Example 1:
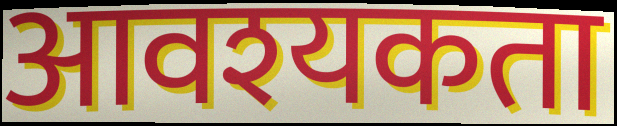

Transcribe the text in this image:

आवश्‍यकता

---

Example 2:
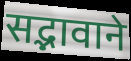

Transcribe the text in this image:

सद्भावाने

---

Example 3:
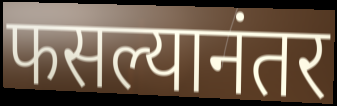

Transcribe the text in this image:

फसल्यानंतर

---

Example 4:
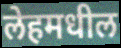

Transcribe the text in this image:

लेहमधील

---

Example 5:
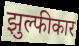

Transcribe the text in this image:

झुल्फीकार